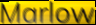
Marlow